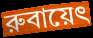
রুবায়েৎ